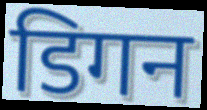
डिगन